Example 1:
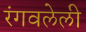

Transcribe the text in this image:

रंगवलेली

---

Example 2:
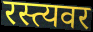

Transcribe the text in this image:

रस्त्यवर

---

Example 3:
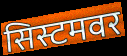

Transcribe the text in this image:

सिस्टमवर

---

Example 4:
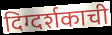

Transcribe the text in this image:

दिग्दर्शकाची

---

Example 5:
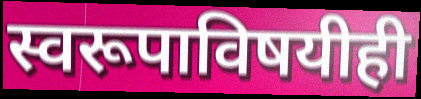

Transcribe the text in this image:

स्वरूपाविषयीही